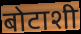
बोटाशी